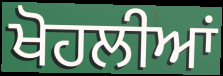
ਖੋਹਲੀਆਂ